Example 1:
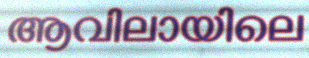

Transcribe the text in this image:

ആവിലായിലെ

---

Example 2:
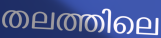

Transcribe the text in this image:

തലത്തിലെ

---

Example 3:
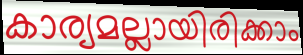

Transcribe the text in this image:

കാര്യമല്ലായിരിക്കാം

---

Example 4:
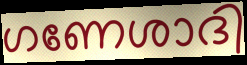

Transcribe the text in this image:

ഗണേശാദി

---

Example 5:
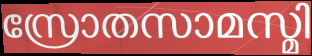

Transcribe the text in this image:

സ്രോതസാമസ്മി